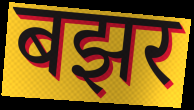
बझर